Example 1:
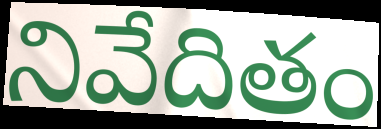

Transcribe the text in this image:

నివేదితం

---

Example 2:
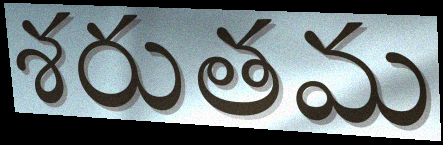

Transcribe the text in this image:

శరుతమ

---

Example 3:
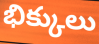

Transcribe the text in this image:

భిక్కులు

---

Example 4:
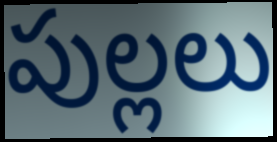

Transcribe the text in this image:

పుల్లలు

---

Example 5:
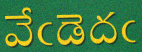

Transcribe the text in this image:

వేఁడెదఁ